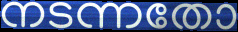
നടന്നതോ